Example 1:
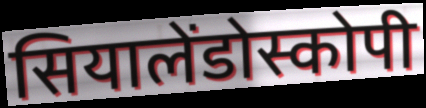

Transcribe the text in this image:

सियालेंडोस्कोपी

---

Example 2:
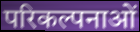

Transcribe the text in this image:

परिकल्पनाओं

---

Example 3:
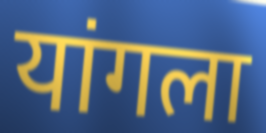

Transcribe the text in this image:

यांगला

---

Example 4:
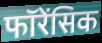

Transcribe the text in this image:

फॉरेंसिक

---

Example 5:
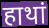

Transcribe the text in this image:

हाथां